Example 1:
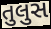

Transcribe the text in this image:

તુલુસ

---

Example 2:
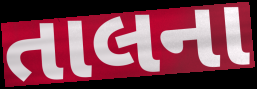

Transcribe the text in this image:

તાલના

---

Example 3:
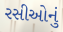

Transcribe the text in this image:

રસીઓનું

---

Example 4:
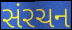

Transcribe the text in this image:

સંરચન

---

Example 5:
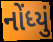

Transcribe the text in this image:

નોંધ્યું